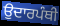
ਉਦਾਰਪੰਥੀ